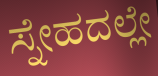
ಸ್ನೇಹದಲ್ಲೇ